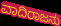
ವಾದಿರಾಜನು